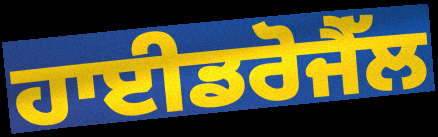
ਹਾਈਡਰੋਜੈੱਲ